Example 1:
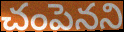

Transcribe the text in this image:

చంపెనని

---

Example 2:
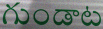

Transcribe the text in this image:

గుండాట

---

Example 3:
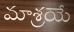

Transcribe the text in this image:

మాశ్రయే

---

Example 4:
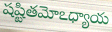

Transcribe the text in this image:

షష్టితమోఽధ్యాయ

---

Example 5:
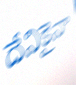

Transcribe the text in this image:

దేనికైనా